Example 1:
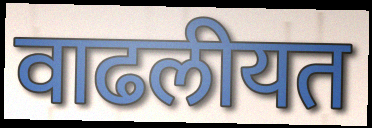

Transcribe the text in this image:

वाढलीयत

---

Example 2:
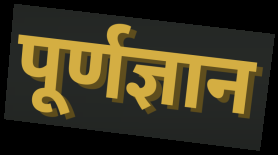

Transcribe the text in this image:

पूर्णज्ञान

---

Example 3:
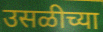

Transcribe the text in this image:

उसळीच्या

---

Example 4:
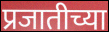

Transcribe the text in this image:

प्रजातीच्या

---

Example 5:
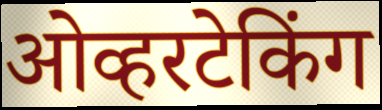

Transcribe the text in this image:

ओव्हरटेकिंग